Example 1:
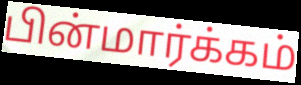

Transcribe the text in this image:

பின்மார்க்கம்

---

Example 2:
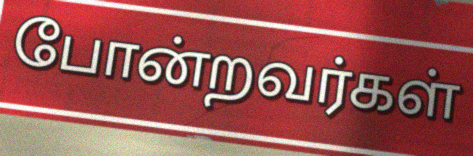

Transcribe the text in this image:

போன்றவர்கள்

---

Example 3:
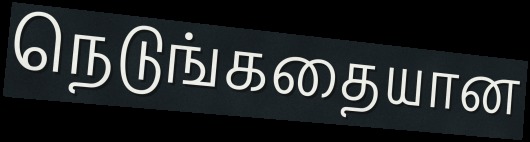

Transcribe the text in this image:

நெடுங்கதையான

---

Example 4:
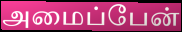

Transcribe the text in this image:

அமைப்பேன்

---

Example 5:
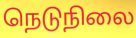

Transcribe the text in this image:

நெடுநிலை